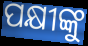
ପକ୍ଷୀଙ୍କୁ